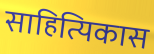
साहित्यिकास